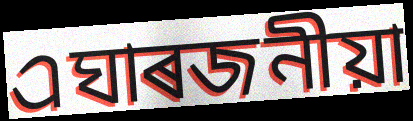
এঘাৰজনীয়া